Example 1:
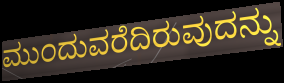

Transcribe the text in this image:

ಮುಂದುವರೆದಿರುವುದನ್ನು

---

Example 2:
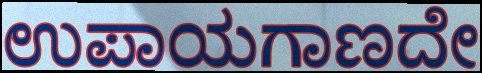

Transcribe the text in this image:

ಉಪಾಯಗಾಣದೇ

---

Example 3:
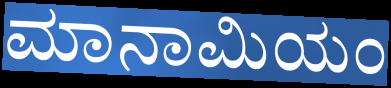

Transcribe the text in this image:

ಮಾನಾಮಿಯಂ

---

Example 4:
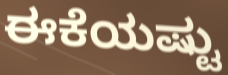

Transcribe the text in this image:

ಈಕೆಯಷ್ಟು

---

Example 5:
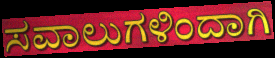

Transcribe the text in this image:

ಸವಾಲುಗಳಿಂದಾಗಿ